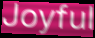
Joyful